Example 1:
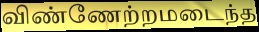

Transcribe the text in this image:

விண்ணேற்றமடைந்த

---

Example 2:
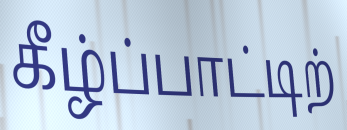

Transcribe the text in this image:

கீழ்ப்பாட்டிற்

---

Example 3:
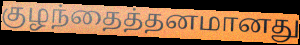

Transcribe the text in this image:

குழந்தைத்தனமானது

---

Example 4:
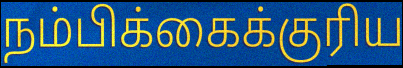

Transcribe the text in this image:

நம்பிக்கைக்குரிய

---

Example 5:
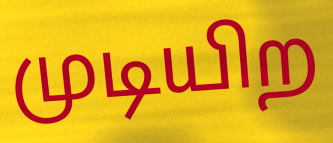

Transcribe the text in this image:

முடியிற